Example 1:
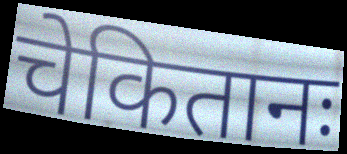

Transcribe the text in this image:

चेकितानः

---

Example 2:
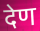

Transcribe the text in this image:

देण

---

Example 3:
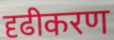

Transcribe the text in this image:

दृढीकरण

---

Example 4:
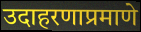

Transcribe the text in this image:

उदाहरणाप्रमाणे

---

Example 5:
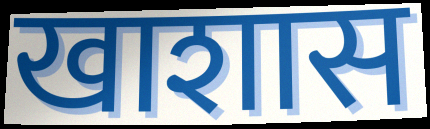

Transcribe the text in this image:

खाशास